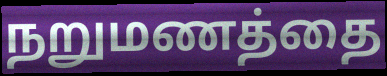
நறுமணத்தை